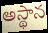
అస్థాన